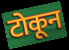
टोकून